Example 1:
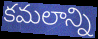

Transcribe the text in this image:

కమలాన్ని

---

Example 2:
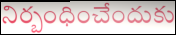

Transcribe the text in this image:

నిర్బంధించేందుకు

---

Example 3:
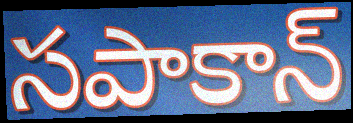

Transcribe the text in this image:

సపాకాన్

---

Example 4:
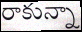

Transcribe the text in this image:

రాకున్నా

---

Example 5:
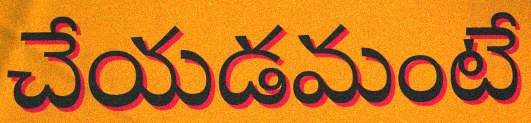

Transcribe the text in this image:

చేయడమంటే